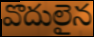
వొదులైన